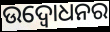
ଉଦ୍ବୋଧନର